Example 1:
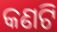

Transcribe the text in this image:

କଣଟି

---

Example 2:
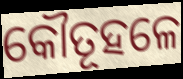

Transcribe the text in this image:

କୌତୂହଳେ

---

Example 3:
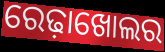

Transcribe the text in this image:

ରେଢ଼ାଖୋଲର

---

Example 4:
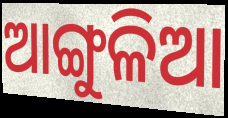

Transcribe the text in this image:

ଆଙ୍ଗୁଳିଆ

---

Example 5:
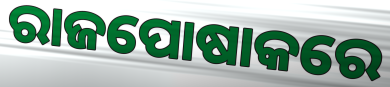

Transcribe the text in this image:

ରାଜପୋଷାକରେ